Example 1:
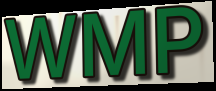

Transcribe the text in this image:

WMP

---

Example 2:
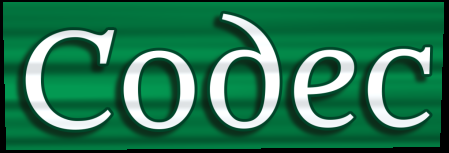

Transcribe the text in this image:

Codec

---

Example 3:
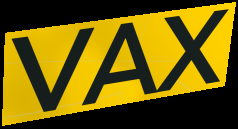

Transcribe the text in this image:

VAX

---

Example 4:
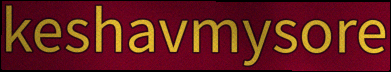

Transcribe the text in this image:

keshavmysore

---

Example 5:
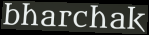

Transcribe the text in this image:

bharchak